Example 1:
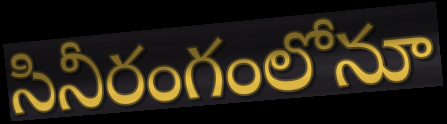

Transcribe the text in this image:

సినీరంగంలోనూ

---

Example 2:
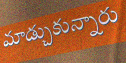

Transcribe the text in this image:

మాడ్చుకున్నారు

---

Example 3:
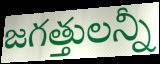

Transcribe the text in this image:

జగత్తులన్నీ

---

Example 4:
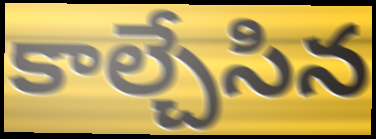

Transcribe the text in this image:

కాల్చేసిన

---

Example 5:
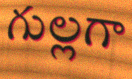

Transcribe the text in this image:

గుల్లగా